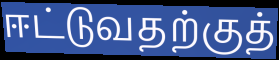
ஈட்டுவதற்குத்